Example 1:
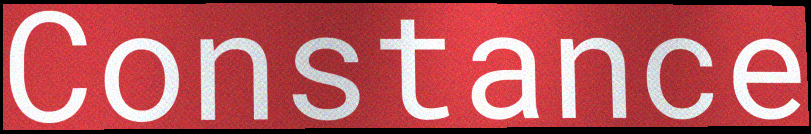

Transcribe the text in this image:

Constance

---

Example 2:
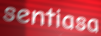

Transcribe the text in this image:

sentiasa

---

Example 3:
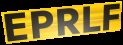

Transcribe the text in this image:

EPRLF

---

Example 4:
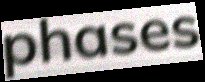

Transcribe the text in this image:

phases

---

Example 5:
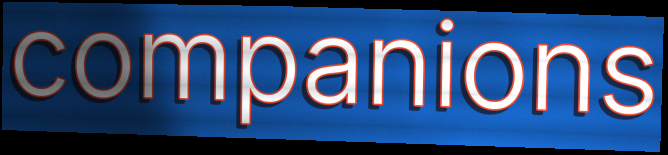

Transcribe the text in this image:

companions